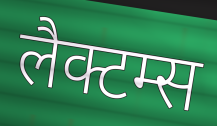
लैक्टम्स